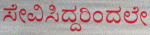
ಸೇವಿಸಿದ್ದರಿಂದಲೇ